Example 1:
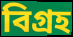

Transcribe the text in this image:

বিগ্ৰহ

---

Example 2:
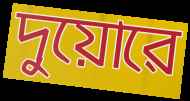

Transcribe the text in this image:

দুয়োৱে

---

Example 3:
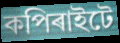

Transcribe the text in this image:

কপিৰাইটে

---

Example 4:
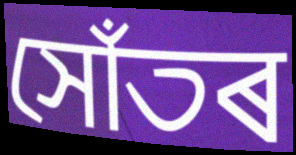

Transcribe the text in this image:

সোঁতৰ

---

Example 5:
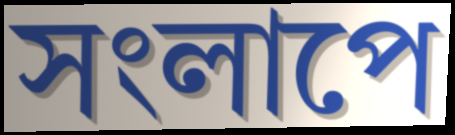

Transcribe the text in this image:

সংলাপে